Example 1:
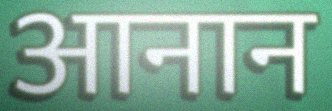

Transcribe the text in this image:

आनान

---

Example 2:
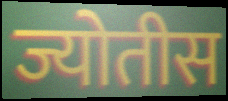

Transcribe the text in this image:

ज्योतीस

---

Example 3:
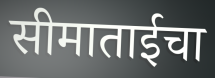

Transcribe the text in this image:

सीमाताईचा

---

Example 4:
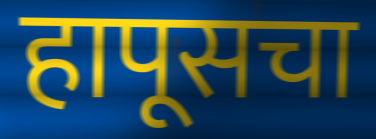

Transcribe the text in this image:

हापूसचा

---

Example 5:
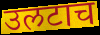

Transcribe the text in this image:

उलटाच